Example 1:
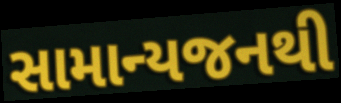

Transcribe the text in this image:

સામાન્યજનથી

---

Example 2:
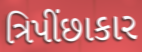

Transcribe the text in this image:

ત્રિપીંછાકાર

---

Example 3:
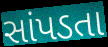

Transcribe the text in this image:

સાંપડતા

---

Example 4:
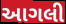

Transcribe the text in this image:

આગલી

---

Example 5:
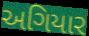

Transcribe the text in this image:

અગિયાર